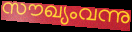
സൗഖ്യംവന്നു